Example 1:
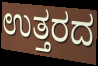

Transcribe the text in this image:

ಉತ್ತರದ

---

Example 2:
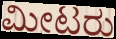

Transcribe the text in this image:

ಮೀಟರು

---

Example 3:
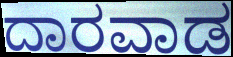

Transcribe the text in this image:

ದಾರವಾಡ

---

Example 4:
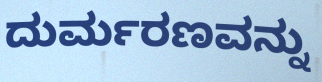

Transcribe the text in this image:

ದುರ್ಮರಣವನ್ನು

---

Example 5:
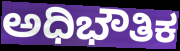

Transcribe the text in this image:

ಅಧಿಭೌತಿಕ